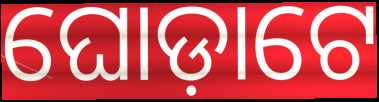
ଘୋଡ଼ାଟେ